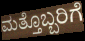
ಮತ್ತೊಬ್ಬರಿಗೆ